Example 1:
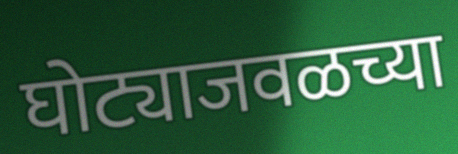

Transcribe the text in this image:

घोट्याजवळच्या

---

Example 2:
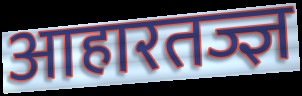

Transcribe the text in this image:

आहारतज्ज्ञ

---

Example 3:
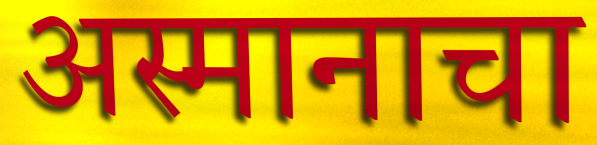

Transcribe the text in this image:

अस्मानाचा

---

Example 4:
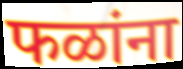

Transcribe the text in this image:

फळांना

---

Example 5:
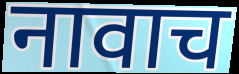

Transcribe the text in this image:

नावाच